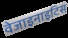
वेजाइनाइटिस